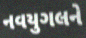
નવયુગલને